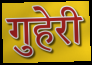
गुहेरी